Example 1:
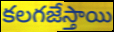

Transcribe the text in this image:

కలగజేస్తాయి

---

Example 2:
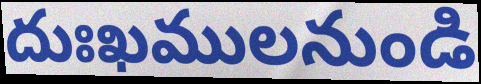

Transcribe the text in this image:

దుఃఖములనుండి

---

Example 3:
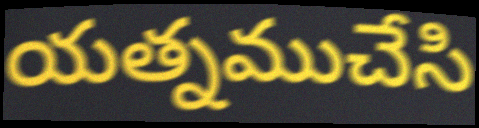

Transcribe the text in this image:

యత్నముచేసి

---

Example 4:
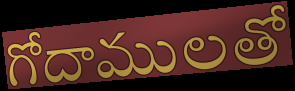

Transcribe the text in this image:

గోదాములతో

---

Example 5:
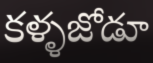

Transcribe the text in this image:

కళ్ళజోడూ